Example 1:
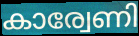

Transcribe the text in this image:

കാര്വേണി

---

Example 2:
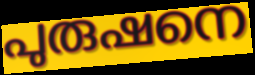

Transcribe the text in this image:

പുരുഷനെ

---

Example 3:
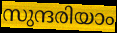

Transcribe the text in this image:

സുന്ദരിയാം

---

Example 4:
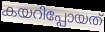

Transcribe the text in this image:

കയറിപ്പോയത്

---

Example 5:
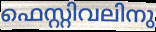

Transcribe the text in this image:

ഫെസ്റ്റിവലിനു